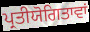
ਪ੍ਰਤੀਯੋਗਿਤਾਵਾਂ